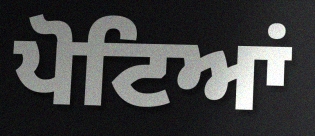
ਪੋਟਿਆਂ